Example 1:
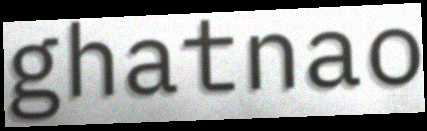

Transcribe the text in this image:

ghatnao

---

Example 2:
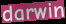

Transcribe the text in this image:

darwin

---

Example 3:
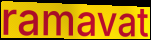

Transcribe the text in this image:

ramavat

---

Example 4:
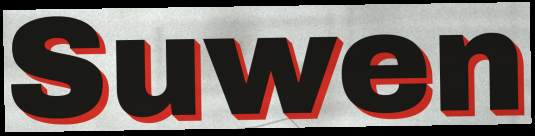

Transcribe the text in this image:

Suwen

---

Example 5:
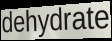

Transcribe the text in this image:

dehydrate